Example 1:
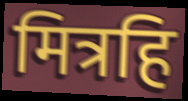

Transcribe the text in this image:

मित्रहि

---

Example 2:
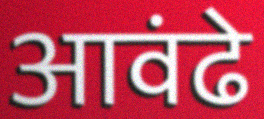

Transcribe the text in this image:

आवंढे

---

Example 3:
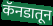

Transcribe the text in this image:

कॅनडातून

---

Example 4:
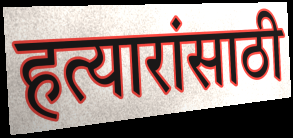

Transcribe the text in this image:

हत्यारांसाठी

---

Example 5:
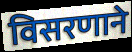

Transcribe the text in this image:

विसरणाने